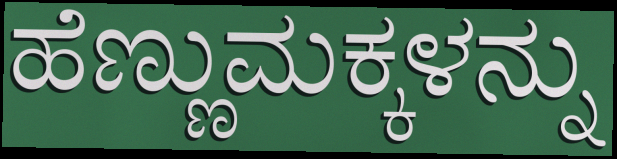
ಹೆಣ್ಣುಮಕ್ಕಳನ್ನು